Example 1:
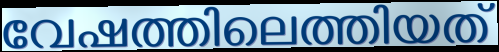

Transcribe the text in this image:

വേഷത്തിലെത്തിയത്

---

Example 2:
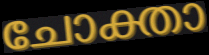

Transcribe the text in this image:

ചോക്താ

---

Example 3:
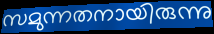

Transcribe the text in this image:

സമുന്നതനായിരുന്നു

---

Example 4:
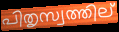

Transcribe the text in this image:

പിതൃസ്വത്തില്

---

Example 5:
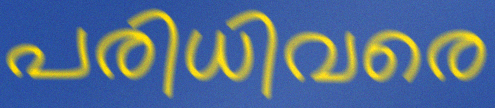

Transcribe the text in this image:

പരിധിവരെ